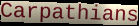
Carpathians